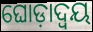
ଘୋଡ଼ାଦ୍ୱୟ